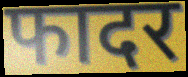
फादर